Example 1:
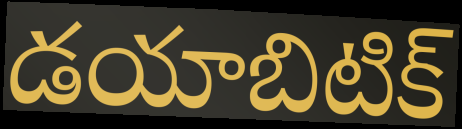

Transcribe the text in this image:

డయాబిటిక్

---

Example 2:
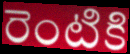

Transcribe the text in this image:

రెంటికి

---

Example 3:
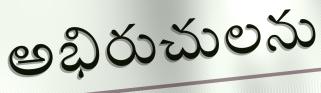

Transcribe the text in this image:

అభిరుచులను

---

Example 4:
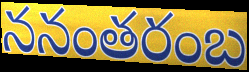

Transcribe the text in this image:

ననంతరంబ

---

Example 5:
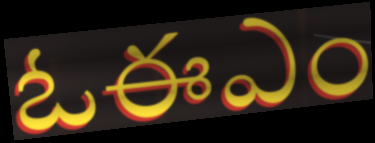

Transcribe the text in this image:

ఓఈఎం